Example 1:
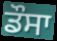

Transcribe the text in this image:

ਡੌਸਾ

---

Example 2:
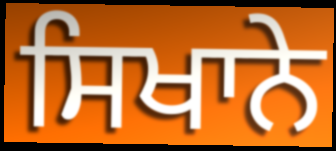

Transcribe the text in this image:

ਸਿਖਾਨੇ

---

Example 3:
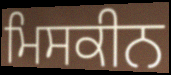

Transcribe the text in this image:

ਮਿਸਕੀਨ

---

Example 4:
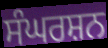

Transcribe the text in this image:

ਸੰਘਰਸ਼ਨ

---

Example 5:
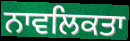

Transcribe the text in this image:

ਨਾਵਲਿਕਤਾ